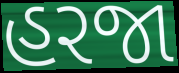
હરજા